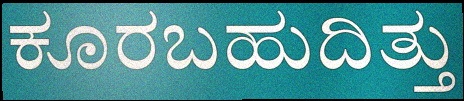
ಕೂರಬಹುದಿತ್ತು